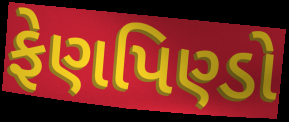
ફેણપિણ્ડો